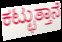
ಕಟ್ಟುತ್ತಾನೆ